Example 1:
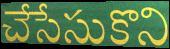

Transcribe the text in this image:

చేసేసుకొని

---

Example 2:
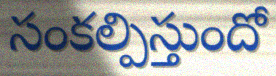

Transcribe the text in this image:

సంకల్పిస్తుందో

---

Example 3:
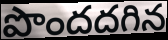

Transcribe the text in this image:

పొందదగిన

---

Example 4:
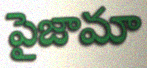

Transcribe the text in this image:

పైజామా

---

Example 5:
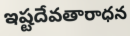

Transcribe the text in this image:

ఇష్టదేవతారాధన